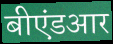
बीएंडआर